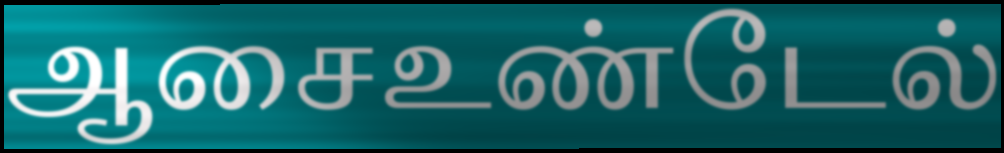
ஆசைஉண்டேல்